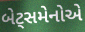
બેટ્સમેનોએ